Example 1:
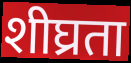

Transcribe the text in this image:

शीघ्रता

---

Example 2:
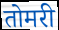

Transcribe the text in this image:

तोमरी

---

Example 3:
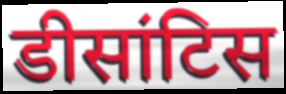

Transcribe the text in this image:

डीसांटिस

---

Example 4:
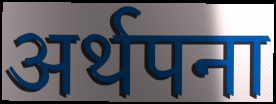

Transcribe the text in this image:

अर्थपना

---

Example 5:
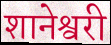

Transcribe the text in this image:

शानेश्वरी